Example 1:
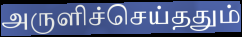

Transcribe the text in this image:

அருளிச்செய்ததும்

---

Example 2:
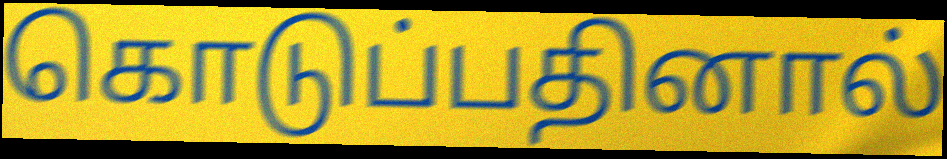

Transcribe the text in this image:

கொடுப்பதினால்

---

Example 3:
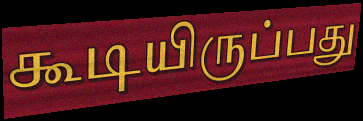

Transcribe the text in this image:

கூடியிருப்பது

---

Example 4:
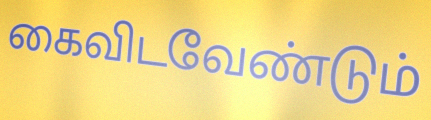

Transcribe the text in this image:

கைவிடவேண்டும்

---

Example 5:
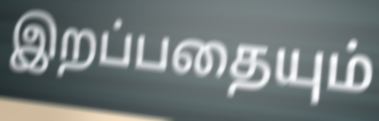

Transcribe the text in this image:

இறப்பதையும்